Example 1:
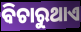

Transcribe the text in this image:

ବିଚାରୁଥାଏ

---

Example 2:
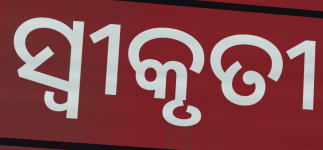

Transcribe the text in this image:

ସ୍ୱୀକୃତୀ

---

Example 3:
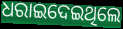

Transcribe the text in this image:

ଧରାଇଦେଇଥିଲେ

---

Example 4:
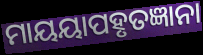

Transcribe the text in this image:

ମାୟୟାପହୃତଜ୍ଞାନା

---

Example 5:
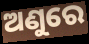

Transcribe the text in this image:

ଅଣୁରେ